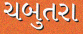
ચબુતરા